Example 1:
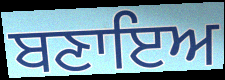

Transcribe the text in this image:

ਬਣਾਇਅ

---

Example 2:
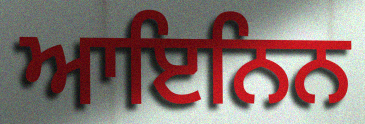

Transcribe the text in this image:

ਆਇਨਿਨ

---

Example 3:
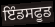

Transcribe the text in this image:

ਇੰਡਸਫੂਡ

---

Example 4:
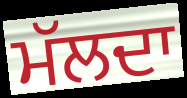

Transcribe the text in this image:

ਮੱਲਦਾ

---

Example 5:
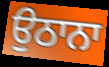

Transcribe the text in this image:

ਉਠਾਨਾ